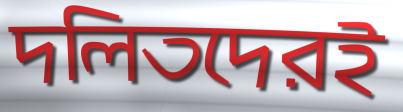
দলিতদেরই